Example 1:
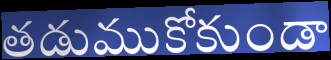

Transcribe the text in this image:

తడుముకోకుండా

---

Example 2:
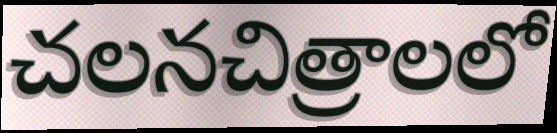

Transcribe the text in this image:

చలనచిత్రాలలో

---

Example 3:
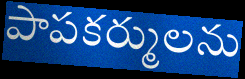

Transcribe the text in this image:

పాపకర్ములను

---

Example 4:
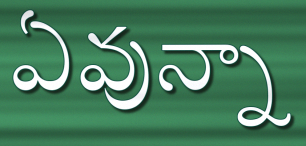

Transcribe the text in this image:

ఏవున్నా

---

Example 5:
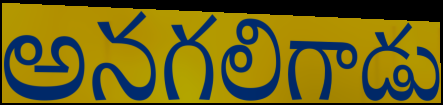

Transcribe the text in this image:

అనగలిగాడు